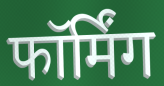
फॉर्मिंग